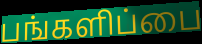
பங்களிப்பை